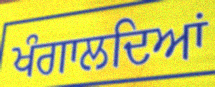
ਖੰਗਾਲਦਿਆਂ